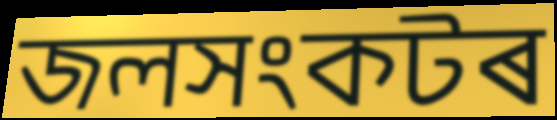
জলসংকটৰ